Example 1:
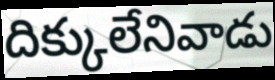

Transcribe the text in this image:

దిక్కులేనివాడు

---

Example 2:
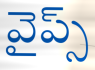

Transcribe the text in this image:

వైప్స్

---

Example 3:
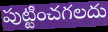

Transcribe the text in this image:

పుట్టించగలదు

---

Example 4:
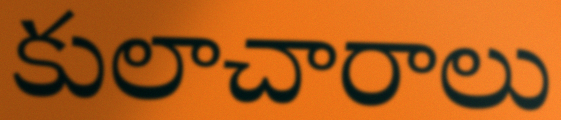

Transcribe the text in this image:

కులాచారాలు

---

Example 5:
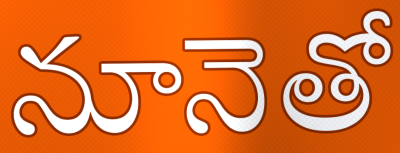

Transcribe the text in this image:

నూనెతో